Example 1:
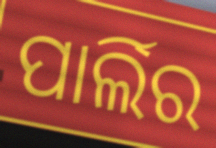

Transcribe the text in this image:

ପାର୍ଲିର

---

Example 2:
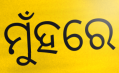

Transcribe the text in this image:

ମୁଁହରେ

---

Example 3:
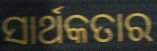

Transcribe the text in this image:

ସାର୍ଥକତାର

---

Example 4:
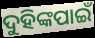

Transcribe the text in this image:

ଦୁହିଙ୍କପାଇଁ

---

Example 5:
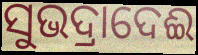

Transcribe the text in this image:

ସୁଭଦ୍ରାଦେଈ